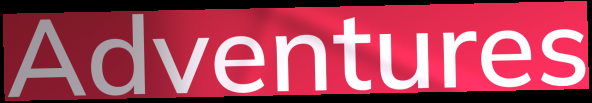
Adventures